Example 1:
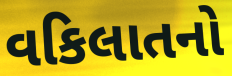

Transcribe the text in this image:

વકિલાતનો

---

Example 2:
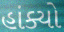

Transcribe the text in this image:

હાંક્યો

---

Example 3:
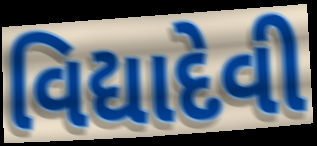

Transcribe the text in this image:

વિદ્યાદેવી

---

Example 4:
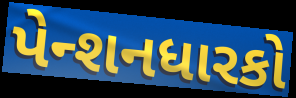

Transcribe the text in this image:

પેન્શનધારકો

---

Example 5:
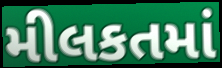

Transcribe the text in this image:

મીલકતમાં